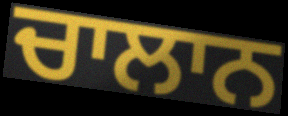
ਚਾਲਾਨ